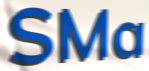
SMa